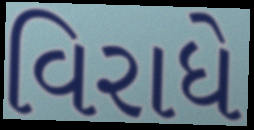
વિરાધે